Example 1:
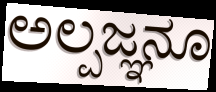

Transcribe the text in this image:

ಅಲ್ಪಜ್ಞನೂ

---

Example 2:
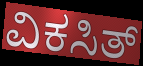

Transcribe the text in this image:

ವಿಕಸಿತ್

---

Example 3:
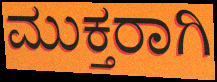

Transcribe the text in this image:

ಮುಕ್ತರಾಗಿ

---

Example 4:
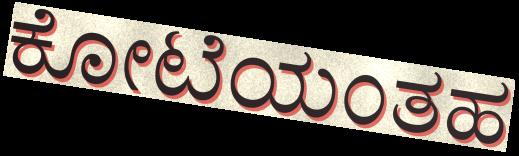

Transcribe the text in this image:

ಕೋಟೆಯಂತಹ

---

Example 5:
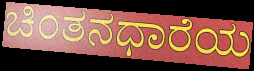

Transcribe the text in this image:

ಚಿಂತನಧಾರೆಯ